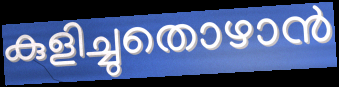
കുളിച്ചുതൊഴാൻ